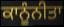
ਕਾਨੂੰਨੀਤਾ